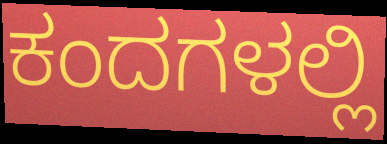
ಕಂದಗಳಲ್ಲಿ